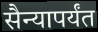
सैन्यापर्यंत